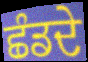
ਛੰਡਦੇ